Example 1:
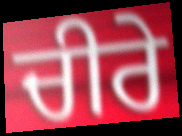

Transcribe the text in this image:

ਚੀਰੇ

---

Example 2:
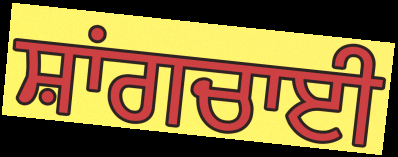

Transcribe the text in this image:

ਸ਼ਾਂਗਚਾਈ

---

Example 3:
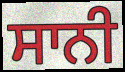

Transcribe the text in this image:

ਸਾਨੀ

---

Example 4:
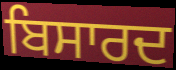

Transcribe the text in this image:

ਬਿਸਾਰਦ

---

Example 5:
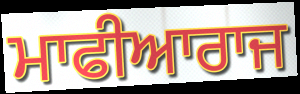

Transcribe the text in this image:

ਮਾਫੀਆਰਾਜ